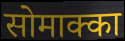
सोमाक्का